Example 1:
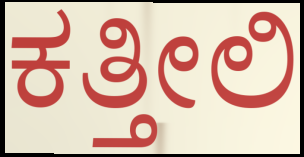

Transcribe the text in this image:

ಕತ್ತೀಲಿ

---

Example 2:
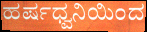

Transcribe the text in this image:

ಹರ್ಷಧ್ವನಿಯಿಂದ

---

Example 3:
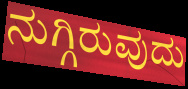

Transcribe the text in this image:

ನುಗ್ಗಿರುವುದು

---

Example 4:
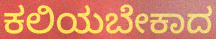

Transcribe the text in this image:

ಕಲಿಯಬೇಕಾದ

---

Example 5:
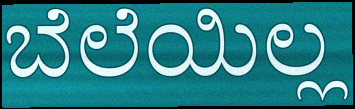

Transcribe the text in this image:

ಬೆಲೆಯಿಲ್ಲ